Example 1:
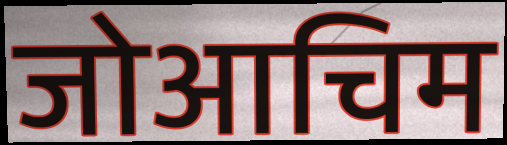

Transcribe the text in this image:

जोआचिम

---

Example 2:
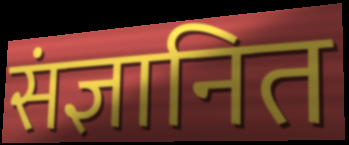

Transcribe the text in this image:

संज्ञानित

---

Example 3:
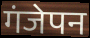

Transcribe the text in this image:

गंजेपन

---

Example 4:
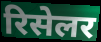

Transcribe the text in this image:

रिसेलर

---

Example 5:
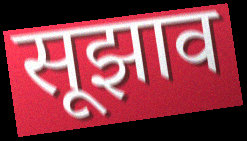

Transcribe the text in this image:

सूझाव